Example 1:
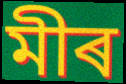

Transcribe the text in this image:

মীৰ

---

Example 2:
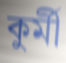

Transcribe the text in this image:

কুৰ্মী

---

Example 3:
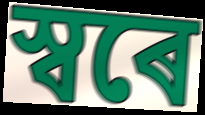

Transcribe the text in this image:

স্বৰে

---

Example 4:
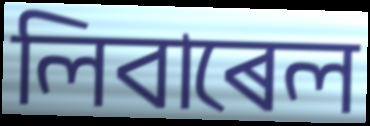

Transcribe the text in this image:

লিবাৰেল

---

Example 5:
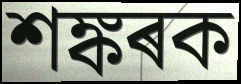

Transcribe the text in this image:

শঙ্কৰক